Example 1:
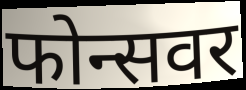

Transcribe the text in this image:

फोन्सवर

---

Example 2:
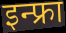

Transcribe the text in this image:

इन्फ्रा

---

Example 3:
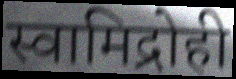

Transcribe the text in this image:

स्वामिद्रोही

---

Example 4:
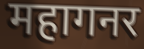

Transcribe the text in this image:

महागनर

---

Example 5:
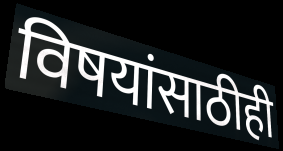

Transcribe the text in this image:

विषयांसाठीही